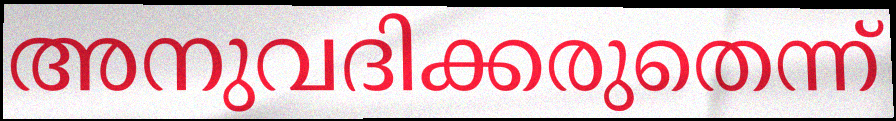
അനുവദിക്കരുതെന്ന്